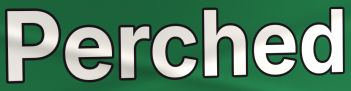
Perched